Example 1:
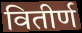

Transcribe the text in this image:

वितीर्ण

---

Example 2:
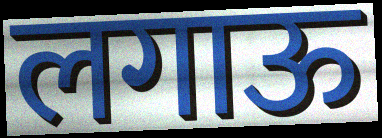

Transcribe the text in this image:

लगाऊ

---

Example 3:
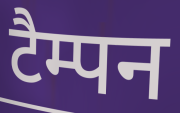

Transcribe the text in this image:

टैम्पन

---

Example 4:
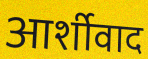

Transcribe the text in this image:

आर्शीवाद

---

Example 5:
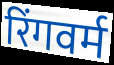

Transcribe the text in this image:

रिंगवर्म